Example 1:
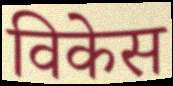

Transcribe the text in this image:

विकेस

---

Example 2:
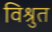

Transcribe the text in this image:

विश्रुत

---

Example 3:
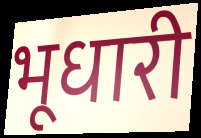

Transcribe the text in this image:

भूधारी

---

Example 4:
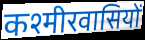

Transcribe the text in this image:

कश्मीरवासियों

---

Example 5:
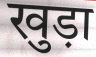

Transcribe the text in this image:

खुड़ा